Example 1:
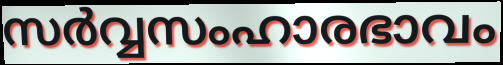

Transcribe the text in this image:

സർവ്വസംഹാരഭാവം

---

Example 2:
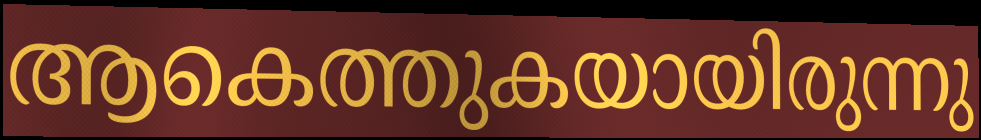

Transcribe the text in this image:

ആകെത്തുകയായിരുന്നു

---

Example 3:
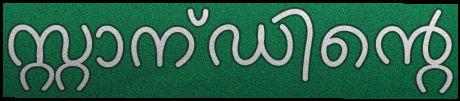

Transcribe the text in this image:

സ്റ്റാന്ഡിന്റെ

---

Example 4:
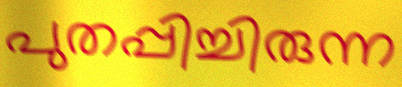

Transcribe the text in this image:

പുതപ്പിച്ചിരുന്ന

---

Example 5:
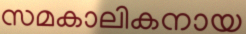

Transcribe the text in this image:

സമകാലികനായ